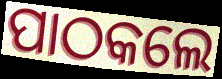
ପାଠକଲେ